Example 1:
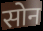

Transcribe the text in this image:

सोन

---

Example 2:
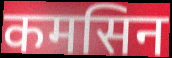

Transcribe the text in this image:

कमसिन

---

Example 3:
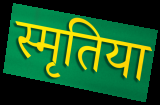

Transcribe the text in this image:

स्मृतिया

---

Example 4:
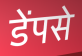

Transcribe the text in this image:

डेंपसे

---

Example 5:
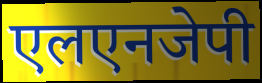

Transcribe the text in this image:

एलएनजेपी